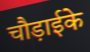
चौड़ाईके